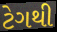
ટેગથી